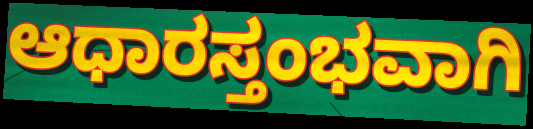
ಆಧಾರಸ್ತಂಭವಾಗಿ